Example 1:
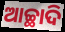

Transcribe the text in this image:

ଆଚ୍ଛାଦି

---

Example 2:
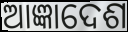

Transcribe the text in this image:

ଆଜ୍ଞାଦେଶ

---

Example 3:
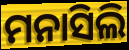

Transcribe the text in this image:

ମନାସିଲି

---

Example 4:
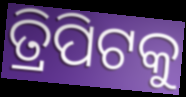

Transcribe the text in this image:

ତ୍ରିପିଟକୁ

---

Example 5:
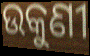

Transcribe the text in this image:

ଉକୁଣୀ